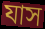
যাস